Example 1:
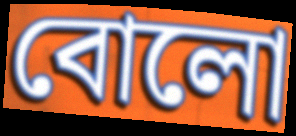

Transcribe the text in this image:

বোলো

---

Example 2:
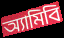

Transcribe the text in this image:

অ্যামিবি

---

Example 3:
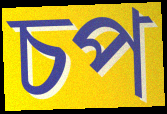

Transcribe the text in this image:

চপ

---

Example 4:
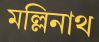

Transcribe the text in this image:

মল্লিনাথ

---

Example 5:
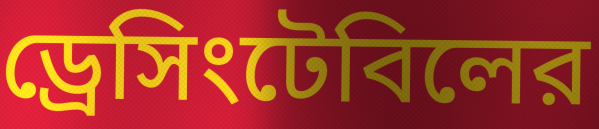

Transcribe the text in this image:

ড্রেসিংটেবিলের